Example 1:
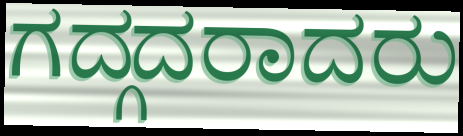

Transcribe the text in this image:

ಗದ್ಗದರಾದರು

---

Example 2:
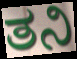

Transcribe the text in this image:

ತನಿ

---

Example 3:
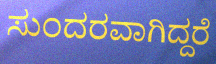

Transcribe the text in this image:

ಸುಂದರವಾಗಿದ್ದರೆ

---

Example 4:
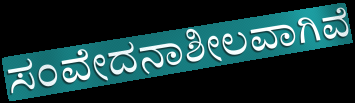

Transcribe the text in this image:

ಸಂವೇದನಾಶೀಲವಾಗಿವೆ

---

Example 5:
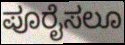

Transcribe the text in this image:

ಪೂರೈಸಲೂ